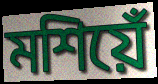
মশিয়েঁ